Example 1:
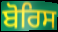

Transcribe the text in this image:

ਬੋਰਿਸ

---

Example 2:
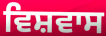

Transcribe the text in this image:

ਵਿਸ਼ਵਾਸ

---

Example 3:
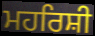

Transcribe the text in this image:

ਮਹਰਿਸ਼ੀ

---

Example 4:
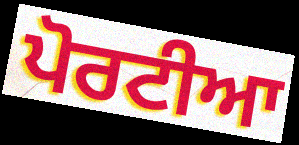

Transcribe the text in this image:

ਪੋਰਟੀਆ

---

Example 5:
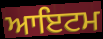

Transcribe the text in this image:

ਆਇਟਮ